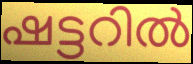
ഷട്ടറിൽ